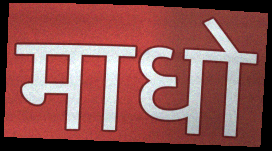
माधो